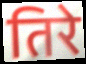
तिरे